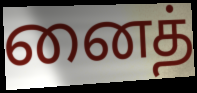
னைத்